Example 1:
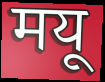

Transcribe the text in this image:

मयू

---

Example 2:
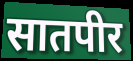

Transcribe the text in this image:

सातपीर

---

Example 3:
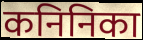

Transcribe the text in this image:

कनिनिका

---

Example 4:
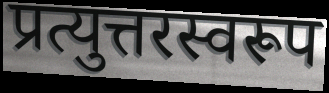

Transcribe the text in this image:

प्रत्युत्तरस्वरूप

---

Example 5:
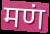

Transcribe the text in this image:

मणं